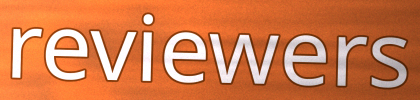
reviewers